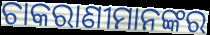
ଚାକରାଣୀମାନଙ୍କର